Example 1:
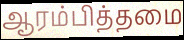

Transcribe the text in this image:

ஆரம்பித்தமை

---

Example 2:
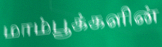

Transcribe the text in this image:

மாம்பூக்களின்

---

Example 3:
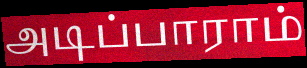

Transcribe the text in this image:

அடிப்பாராம்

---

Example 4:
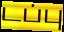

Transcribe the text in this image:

டப்பு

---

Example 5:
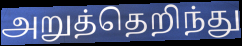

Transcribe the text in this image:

அறுத்தெறிந்து